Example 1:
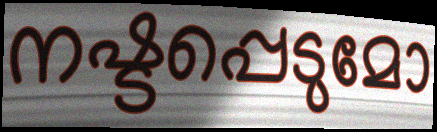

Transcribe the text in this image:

നഷ്ടപ്പെടുമോ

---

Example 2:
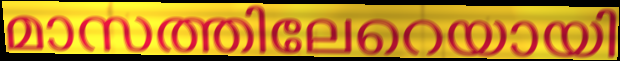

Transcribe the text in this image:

മാസത്തിലേറെയായി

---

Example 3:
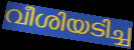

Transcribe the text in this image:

വീശിയടിച്ച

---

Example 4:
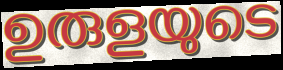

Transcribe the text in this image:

ഉരുളയുടെ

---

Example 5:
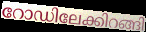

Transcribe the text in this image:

റോഡിലേക്കിറങ്ങി